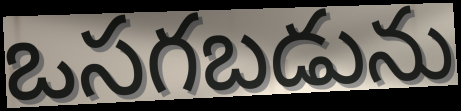
ఒసగబడును